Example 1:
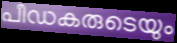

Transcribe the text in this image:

പീഡകരുടെയും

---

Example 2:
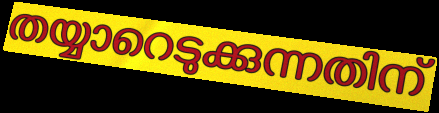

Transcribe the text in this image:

തയ്യാറെടുക്കുന്നതിന്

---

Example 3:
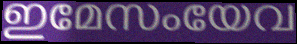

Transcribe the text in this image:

ഇമേസംയേവ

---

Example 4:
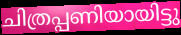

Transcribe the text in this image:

ചിത്രപ്പണിയായിട്ടു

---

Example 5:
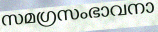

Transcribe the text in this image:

സമഗ്രസംഭാവനാ